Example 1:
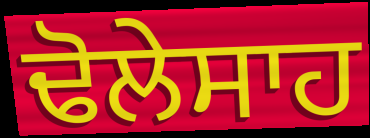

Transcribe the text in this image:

ਢੋਲੇਸਾਹ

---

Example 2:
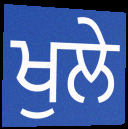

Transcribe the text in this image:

ਖੁਲੇ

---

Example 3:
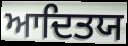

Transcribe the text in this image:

ਆਦਿਤਯ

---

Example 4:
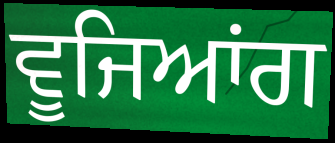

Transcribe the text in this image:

ਵੂਜਿਆਂਗ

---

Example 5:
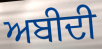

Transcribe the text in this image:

ਅਬੀਦੀ